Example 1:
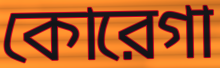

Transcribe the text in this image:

কোরেগা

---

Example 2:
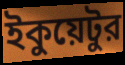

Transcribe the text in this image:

ইকুয়েটুর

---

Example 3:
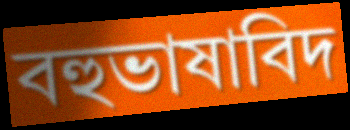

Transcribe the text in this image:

বহুভাষাবিদ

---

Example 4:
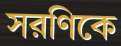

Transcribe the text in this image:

সরণিকে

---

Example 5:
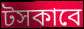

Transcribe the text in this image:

টসকাবে